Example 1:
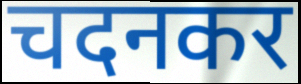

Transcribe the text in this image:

चदनकर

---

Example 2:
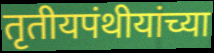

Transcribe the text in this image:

तृतीयपंथीयांच्या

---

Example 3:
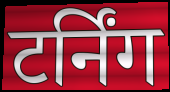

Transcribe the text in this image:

टर्निंग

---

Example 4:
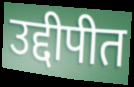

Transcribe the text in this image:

उद्दीपीत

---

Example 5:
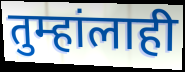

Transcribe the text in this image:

तुम्हांलाही